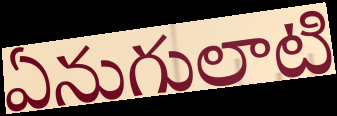
ఏనుగులాటి